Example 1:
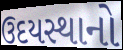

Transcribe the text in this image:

ઉદયસ્થાનો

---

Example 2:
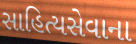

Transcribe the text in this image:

સાહિત્યસેવાના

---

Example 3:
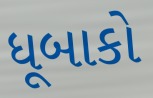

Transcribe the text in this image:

ધૂબાકો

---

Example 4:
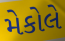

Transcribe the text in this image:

મેકોલે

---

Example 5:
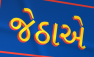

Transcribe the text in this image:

જેઠાએ